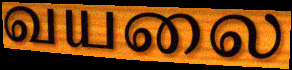
வயலை